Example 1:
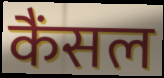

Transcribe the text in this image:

कैंसल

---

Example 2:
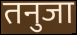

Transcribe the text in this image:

तनुजा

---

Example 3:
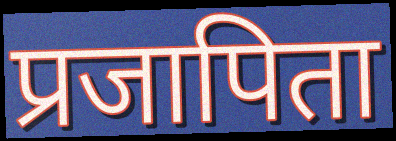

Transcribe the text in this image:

प्रजापिता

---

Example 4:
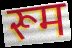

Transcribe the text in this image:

रूम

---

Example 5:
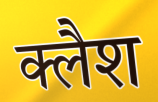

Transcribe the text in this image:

क्लैश